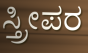
ಸ್ತ್ರೀಪರ